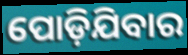
ପୋଡ଼ିଯିବାର